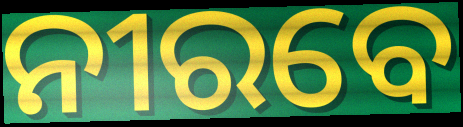
ନୀରବେ